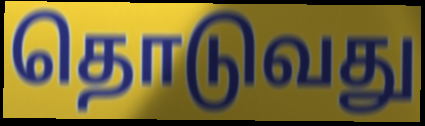
தொடுவது